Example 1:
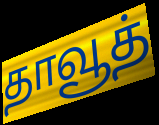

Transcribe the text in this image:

தாவூத்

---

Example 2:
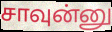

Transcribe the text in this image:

சாவுன்னு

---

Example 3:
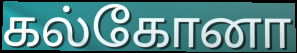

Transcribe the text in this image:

கல்கோனா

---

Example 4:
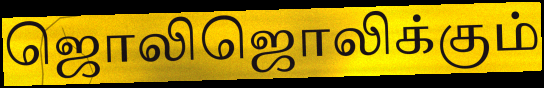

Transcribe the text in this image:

ஜொலிஜொலிக்கும்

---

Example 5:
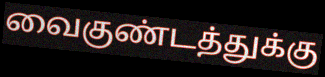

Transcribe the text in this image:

வைகுண்டத்துக்கு